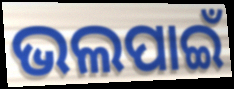
ଭଲପାଇଁ